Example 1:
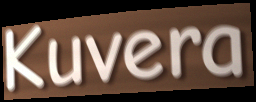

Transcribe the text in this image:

Kuvera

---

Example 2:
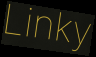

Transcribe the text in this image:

Linky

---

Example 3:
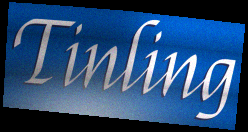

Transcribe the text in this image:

Tinling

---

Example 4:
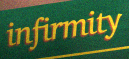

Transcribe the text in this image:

infirmity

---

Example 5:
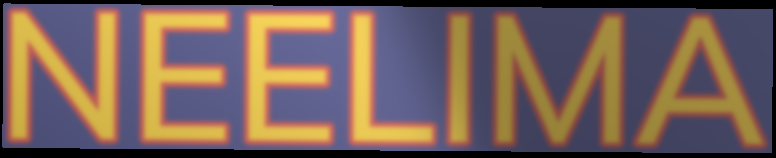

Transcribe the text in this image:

NEELIMA